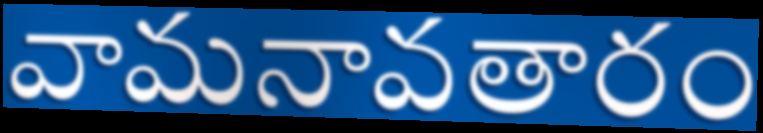
వామనావతారం